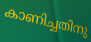
കാണിച്ചതിനു